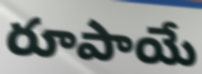
రూపాయే